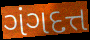
ગંગદત્ત